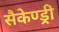
सैकेण्ड्री